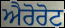
ਐਰੋਰੋਟ